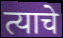
त्याचे